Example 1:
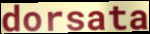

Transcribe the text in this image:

dorsata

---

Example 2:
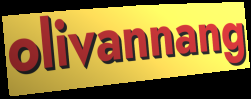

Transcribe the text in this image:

olivannang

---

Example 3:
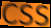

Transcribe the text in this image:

CSS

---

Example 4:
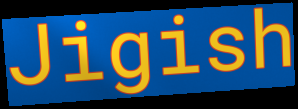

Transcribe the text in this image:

Jigish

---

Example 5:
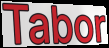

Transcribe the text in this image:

Tabor